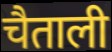
चैताली